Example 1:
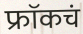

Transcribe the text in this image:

फ्रॉकचं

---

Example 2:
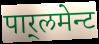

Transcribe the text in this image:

पार्लमेन्ट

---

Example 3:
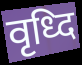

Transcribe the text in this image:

वृध्दि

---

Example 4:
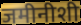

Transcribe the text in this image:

जमीनीशी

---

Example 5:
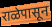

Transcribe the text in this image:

राळेपासून